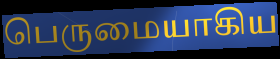
பெருமையாகிய